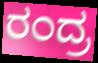
ರಂದ್ರ